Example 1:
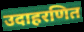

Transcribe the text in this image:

उदाहरणित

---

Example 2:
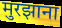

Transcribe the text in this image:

मुरझाना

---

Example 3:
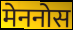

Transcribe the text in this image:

मेननोस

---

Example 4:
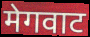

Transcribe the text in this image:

मेगवाट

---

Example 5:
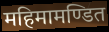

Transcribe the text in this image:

महिमामण्डित